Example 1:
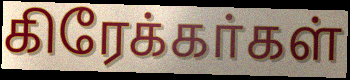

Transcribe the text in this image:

கிரேக்கர்கள்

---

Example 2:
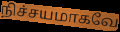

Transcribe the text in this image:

நிச்சயமாகவே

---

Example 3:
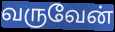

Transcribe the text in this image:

வருவேன்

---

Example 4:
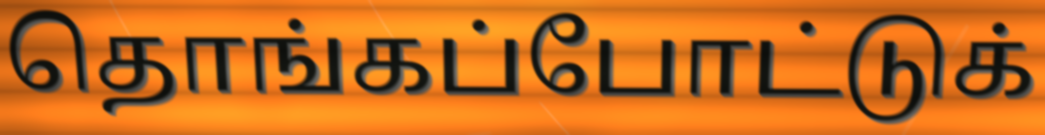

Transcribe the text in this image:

தொங்கப்போட்டுக்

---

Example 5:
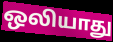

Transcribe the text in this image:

ஒலியாது